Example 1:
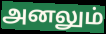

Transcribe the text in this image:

அனலும்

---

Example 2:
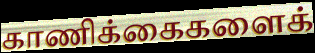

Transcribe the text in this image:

காணிக்கைகளைக்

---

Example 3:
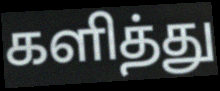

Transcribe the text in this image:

களித்து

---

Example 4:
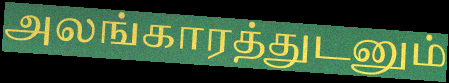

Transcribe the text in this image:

அலங்காரத்துடனும்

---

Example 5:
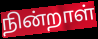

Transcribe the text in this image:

நின்றாள்